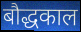
बौद्धकाल